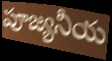
పూజ్యనీయ